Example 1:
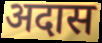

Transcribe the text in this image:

अदास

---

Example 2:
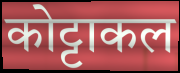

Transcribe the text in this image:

कोट्टाकल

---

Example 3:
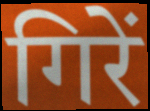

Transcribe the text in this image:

गिरें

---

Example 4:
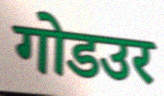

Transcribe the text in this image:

गोडउर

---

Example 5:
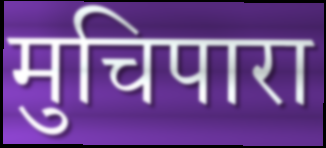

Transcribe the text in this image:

मुचिपारा